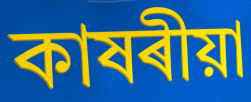
কাষৰীয়া